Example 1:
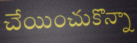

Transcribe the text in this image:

చేయించుకొన్నా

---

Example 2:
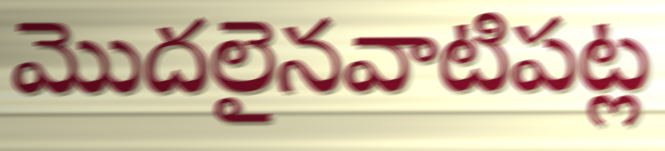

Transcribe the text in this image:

మొదలైనవాటిపట్ల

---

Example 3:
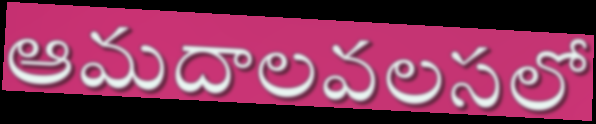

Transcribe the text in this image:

ఆమదాలవలసలో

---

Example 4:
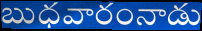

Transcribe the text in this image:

బుధవారంనాడు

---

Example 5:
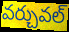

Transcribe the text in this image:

వర్చువల్